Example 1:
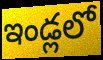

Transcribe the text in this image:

ఇండ్లలో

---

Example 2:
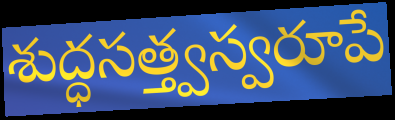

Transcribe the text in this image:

శుద్ధసత్త్వస్వరూపే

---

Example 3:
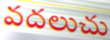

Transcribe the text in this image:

వదలుచు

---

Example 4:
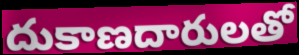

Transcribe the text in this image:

దుకాణదారులతో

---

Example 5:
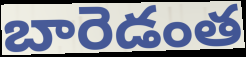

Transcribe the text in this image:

బారెడంత